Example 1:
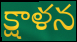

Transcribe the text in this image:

క్షాళన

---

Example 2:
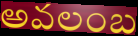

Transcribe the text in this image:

అవలంబ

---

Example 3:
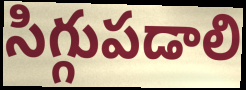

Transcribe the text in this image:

సిగ్గుపడాలి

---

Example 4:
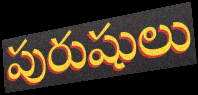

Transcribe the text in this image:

పురుషులు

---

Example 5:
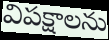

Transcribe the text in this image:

విపక్షాలను